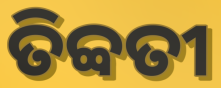
ତିବ୍ବତୀ